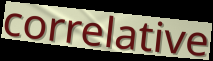
correlative